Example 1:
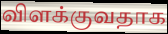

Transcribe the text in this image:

விளக்குவதாக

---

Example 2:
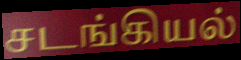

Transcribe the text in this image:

சடங்கியல்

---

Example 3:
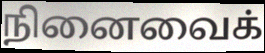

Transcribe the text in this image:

நினைவைக்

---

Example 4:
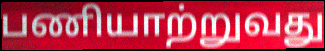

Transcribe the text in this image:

பணியாற்றுவது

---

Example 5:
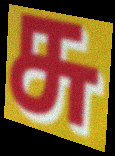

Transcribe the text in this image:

சு